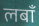
लबाँ